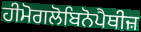
ਹੀਮੋਗਲੋਬਿਨੋਪੈਥੀਜ਼